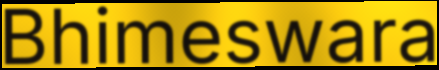
Bhimeswara